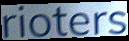
rioters